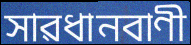
সাৱধানবাণী